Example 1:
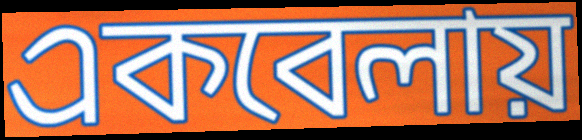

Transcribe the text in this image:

একবেলায়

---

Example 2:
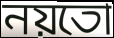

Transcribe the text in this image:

নয়তো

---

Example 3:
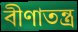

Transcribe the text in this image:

বীণাতন্ত্র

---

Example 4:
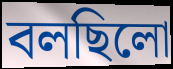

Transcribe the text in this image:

বলছিলো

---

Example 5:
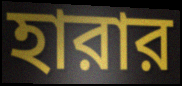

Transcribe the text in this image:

হারার